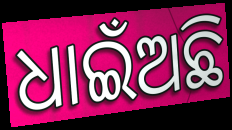
ଧାଇଁଅଛି